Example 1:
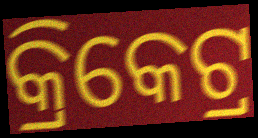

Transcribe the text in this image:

କ୍ରିକେଟ୍ର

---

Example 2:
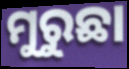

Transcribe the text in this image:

ମୁରୁଛା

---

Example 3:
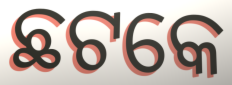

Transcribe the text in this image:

ଛଟକେ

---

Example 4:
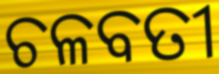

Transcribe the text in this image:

ଚଳବତୀ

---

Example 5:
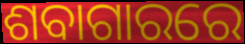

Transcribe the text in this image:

ଶବାଗାରରେ